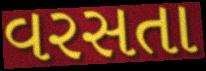
વરસતા